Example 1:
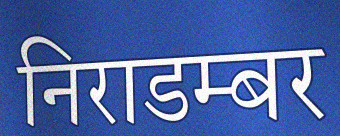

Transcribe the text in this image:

निराडम्बर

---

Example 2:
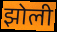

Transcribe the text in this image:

झोली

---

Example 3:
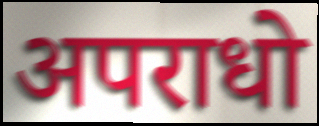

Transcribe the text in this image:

अपराधो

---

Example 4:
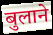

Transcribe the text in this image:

बुलाने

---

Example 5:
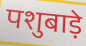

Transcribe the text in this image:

पशुबाड़े